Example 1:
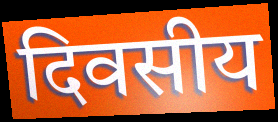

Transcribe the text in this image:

दिवसीय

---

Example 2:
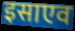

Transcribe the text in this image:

इसाएव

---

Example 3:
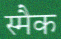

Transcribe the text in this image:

स्मैक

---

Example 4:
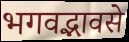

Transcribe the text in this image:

भगवद्भावसे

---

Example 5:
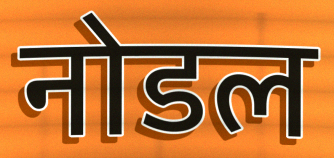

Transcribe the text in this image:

नोडल